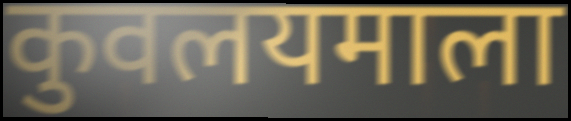
कुवलयमाला